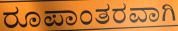
ರೂಪಾಂತರವಾಗಿ